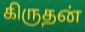
கிருதன்